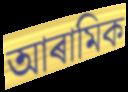
আৰামিক